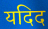
यदिद